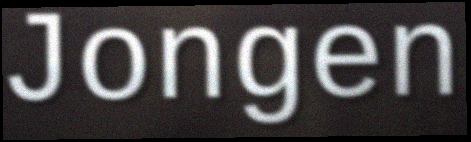
Jongen